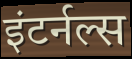
इंटर्नल्स